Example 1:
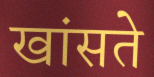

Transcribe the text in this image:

खांसते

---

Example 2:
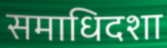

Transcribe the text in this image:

समाधिदशा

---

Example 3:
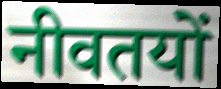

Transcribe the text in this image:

नीवतयों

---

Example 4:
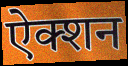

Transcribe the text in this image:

ऐक्‍शन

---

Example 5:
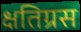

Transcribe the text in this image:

क्षतिग्रस